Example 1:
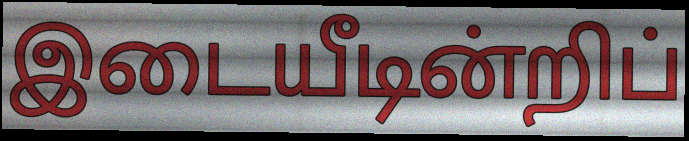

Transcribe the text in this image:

இடையீடின்றிப்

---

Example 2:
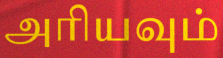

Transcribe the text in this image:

அரியவும்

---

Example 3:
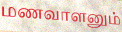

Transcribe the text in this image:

மணவாளனும்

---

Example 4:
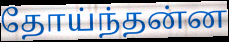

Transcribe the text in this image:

தோய்ந்தன்ன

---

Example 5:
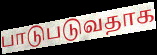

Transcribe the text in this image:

பாடுபடுவதாக